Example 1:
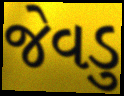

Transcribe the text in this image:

જેવડુ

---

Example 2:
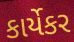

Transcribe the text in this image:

કાર્યેકર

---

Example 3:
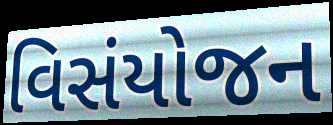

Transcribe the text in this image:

વિસંયોજન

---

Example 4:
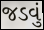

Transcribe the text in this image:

જડવું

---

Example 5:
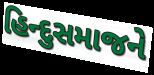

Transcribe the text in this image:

હિન્દુસમાજને